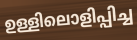
ഉള്ളിലൊളിപ്പിച്ച